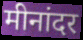
मीनांदर